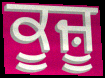
ਕੂਜ਼ੂ